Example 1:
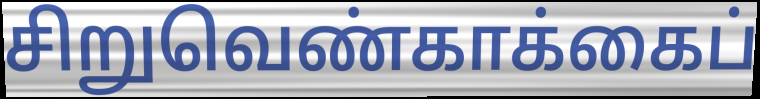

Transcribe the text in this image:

சிறுவெண்காக்கைப்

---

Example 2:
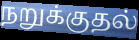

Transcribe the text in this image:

நறுக்குதல்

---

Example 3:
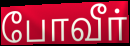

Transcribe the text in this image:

போவீர்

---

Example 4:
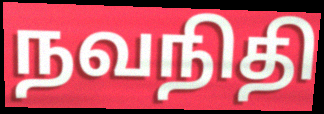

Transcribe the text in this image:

நவநிதி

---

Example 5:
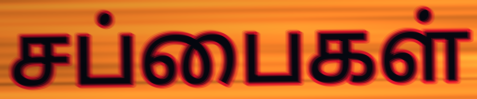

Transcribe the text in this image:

சப்பைகள்